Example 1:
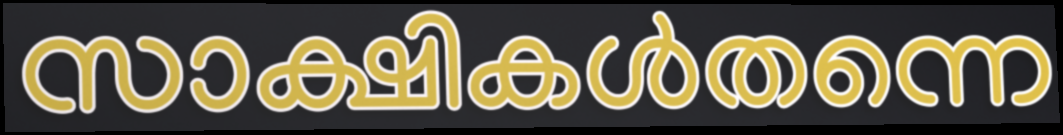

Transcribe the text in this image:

സാക്ഷികൾതന്നെ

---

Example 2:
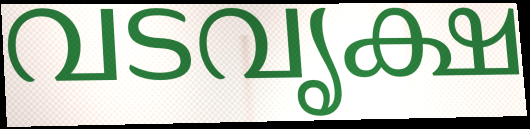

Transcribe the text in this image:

വടവൃക്ഷ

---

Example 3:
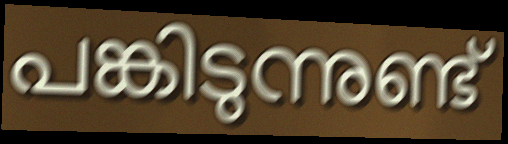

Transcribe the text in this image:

പങ്കിടുന്നുണ്ട്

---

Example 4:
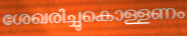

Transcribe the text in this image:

ശേഖരിച്ചുകൊള്ളണം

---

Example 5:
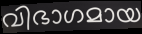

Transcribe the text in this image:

വിഭാഗമായ